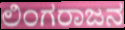
ಲಿಂಗರಾಜನ